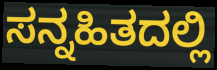
ಸನ್ನಹಿತದಲ್ಲಿ